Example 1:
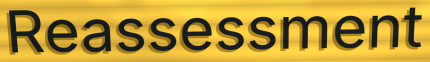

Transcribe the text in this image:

Reassessment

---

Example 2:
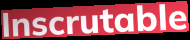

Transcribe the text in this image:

Inscrutable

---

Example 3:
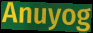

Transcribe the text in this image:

Anuyog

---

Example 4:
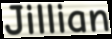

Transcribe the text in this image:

Jillian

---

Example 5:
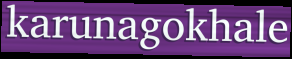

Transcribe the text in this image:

karunagokhale